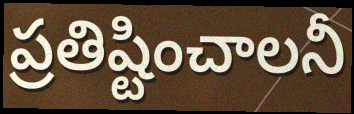
ప్రతిష్టించాలనీ